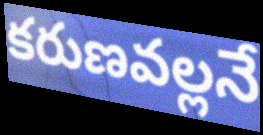
కరుణవల్లనే